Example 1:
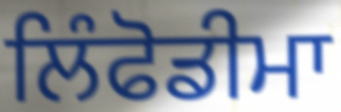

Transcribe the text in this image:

ਲਿੰਫੋਡੀਮਾ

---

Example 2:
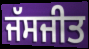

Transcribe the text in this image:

ਜੱਸਜੀਤ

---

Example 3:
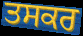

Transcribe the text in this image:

ਤਸਕਰ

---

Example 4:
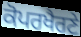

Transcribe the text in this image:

ਕੋਪਰਖੈਰਣੇ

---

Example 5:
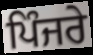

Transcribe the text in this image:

ਪਿੰਜਰੇ